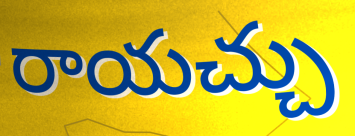
రాయచ్చు